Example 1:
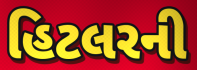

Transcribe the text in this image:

હિટલરની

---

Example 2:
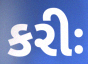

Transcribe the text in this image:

કરીઃ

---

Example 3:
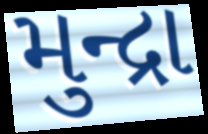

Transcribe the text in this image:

મુન્દ્રા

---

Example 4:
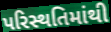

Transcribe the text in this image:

પરિસ્થતિમાંથી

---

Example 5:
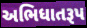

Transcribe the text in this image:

અભિધાતરૂપ